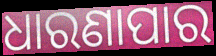
ଧାରଣାପାର